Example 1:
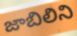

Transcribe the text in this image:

జాబిలిని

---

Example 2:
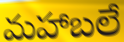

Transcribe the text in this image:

మహాబలే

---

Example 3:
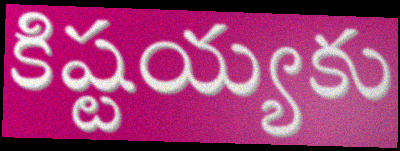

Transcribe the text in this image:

కిష్టయ్యకు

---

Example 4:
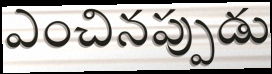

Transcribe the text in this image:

ఎంచినప్పుడు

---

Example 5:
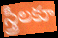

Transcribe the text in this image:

స్త్రీలకూ